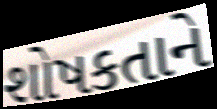
શોષકતાને